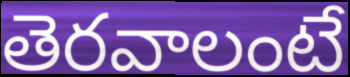
తెరవాలంటే